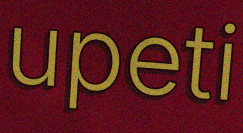
upeti